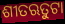
ଶୀତଋତୁଟା